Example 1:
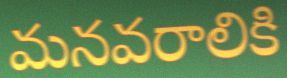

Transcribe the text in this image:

మనవరాలికి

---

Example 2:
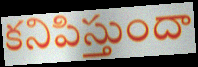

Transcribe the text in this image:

కనిపిస్తుందా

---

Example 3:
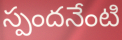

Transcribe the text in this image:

స్పందనేంటి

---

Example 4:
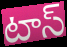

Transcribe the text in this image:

టాస్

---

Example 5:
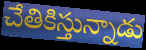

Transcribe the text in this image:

చేతికిస్తున్నాడు